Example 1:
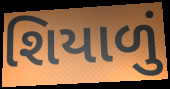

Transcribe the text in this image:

શિયાળું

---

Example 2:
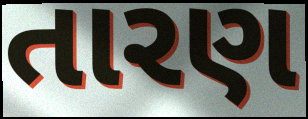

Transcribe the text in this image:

તારણ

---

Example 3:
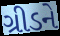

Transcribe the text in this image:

ગ્રીડને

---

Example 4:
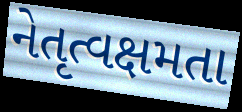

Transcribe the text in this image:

નેતૃત્વક્ષમતા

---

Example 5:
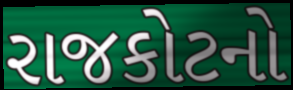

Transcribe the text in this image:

રાજકોટનો